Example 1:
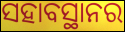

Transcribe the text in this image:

ସହାବସ୍ଥାନର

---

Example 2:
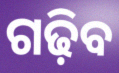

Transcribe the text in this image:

ଗଢ଼ିବ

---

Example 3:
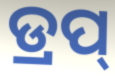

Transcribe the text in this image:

ଡ୍ରପ୍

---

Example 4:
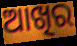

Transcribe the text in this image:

ଆଖିର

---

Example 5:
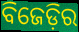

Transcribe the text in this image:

ବିଜେଡ଼ିର